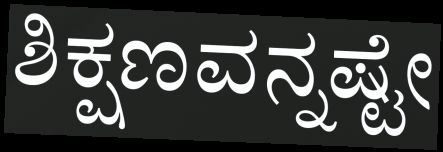
ಶಿಕ್ಷಣವನ್ನಷ್ಟೇ